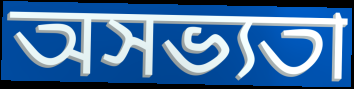
অসভ্যতা